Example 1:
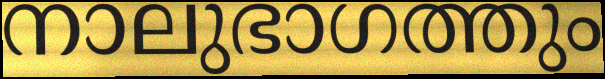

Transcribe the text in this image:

നാലുഭാഗത്തും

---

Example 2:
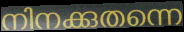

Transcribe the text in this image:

നിനക്കുതന്നെ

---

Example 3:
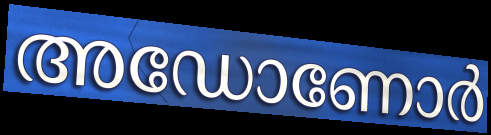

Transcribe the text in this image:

അഡോണോർ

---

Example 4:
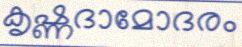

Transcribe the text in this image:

കൃഷ്ണദാമോദരം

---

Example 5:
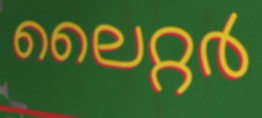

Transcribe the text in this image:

ലൈറ്റർ